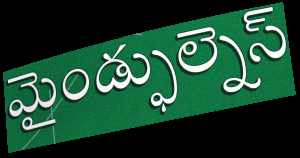
మైండ్ఫుల్నెస్